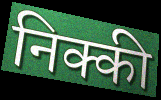
निक्‍की